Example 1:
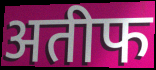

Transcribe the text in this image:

अतीफ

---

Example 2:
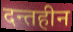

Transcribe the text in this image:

दन्तहीन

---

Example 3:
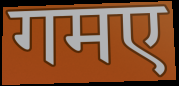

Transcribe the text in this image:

गमए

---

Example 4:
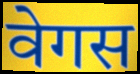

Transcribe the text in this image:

वेगस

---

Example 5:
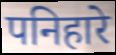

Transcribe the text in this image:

पनिहारे